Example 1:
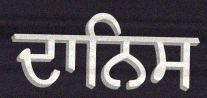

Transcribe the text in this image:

ਦਾਨਿਸ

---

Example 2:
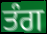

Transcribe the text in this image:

ਤੰਗ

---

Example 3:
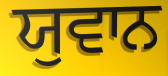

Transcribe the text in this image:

ਯੁਵਾਨ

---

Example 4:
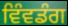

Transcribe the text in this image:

ਵਿੰਵਡੰਗ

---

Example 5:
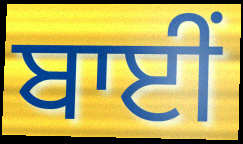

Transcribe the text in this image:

ਬਾਈਂ